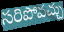
సరిపోవచ్చు